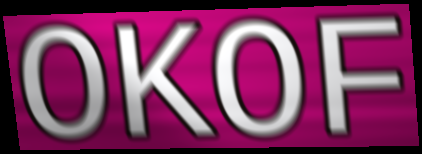
OKOF